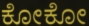
ಕೋಕೋ